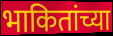
भाकितांच्या